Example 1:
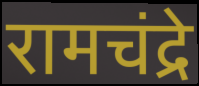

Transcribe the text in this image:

रामचंद्रे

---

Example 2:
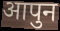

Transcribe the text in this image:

आपुन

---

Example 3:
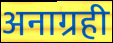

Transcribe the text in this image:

अनाग्रही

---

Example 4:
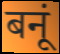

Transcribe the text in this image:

बनूं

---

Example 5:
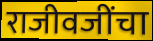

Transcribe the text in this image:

राजीवजींचा